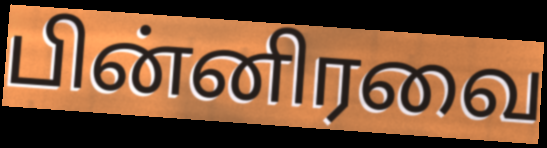
பின்னிரவை